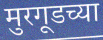
मुरगूडच्या